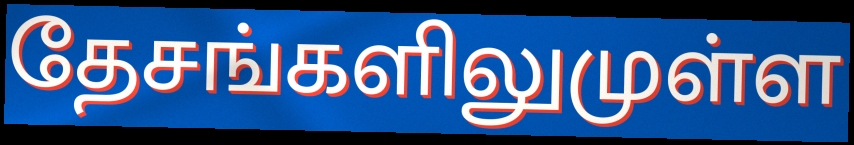
தேசங்களிலுமுள்ள